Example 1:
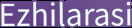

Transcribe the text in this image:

Ezhilarasi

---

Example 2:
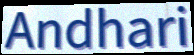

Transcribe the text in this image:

Andhari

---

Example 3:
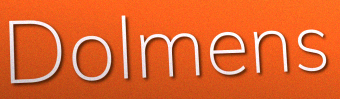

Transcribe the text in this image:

Dolmens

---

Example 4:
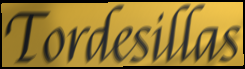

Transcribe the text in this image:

Tordesillas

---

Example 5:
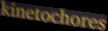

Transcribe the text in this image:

kinetochores